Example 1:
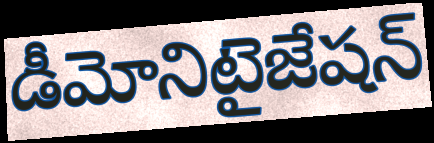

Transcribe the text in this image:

డీమోనిటైజేషన్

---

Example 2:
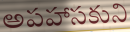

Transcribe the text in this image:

అపహాసకుని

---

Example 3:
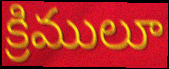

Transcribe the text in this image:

క్రిములూ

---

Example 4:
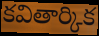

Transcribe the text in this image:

కవితార్కిక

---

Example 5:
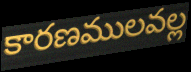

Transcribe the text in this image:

కారణములవల్ల